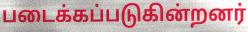
படைக்கப்படுகின்றனர்